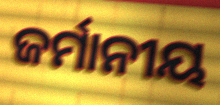
ଜର୍ମାନୀୟ